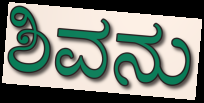
ಶಿವನು